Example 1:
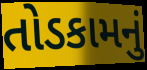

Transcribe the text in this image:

તોડકામનું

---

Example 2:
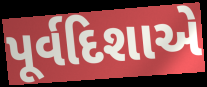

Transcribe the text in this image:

પૂર્વદિશાએ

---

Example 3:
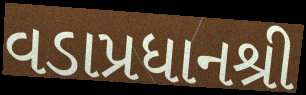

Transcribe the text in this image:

વડાપ્રધાનશ્રી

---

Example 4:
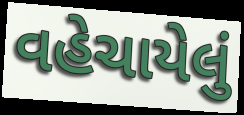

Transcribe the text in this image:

વહેચાયેલું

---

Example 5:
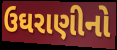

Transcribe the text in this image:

ઉઘરાણીનો